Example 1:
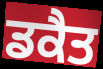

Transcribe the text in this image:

ਡਕੈਤ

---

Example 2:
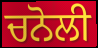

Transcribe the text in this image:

ਚਨੋਲੀ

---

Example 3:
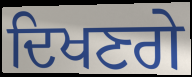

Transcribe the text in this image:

ਦਿਖਣਗੇ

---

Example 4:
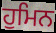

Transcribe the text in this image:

ਹੁਮਿਨ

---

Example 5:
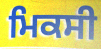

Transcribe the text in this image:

ਮਿਕਸੀ